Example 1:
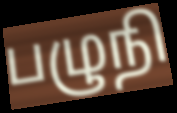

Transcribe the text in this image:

பழுநி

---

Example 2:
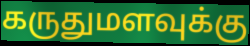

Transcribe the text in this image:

கருதுமளவுக்கு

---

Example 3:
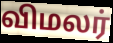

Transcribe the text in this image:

விமலர்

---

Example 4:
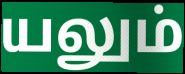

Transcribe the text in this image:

யலும்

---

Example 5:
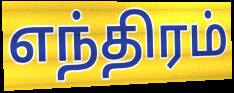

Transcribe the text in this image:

எந்திரம்